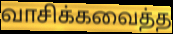
வாசிக்கவைத்த